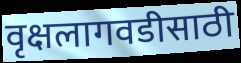
वृक्षलागवडीसाठी